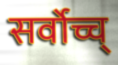
सर्वोच्च्